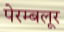
पेरम्बलूर